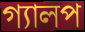
গ্যালপ